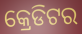
କ୍ରେଡିଟର